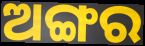
ଅଙ୍ଗର